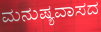
ಮನುಷ್ಯವಾಸದ